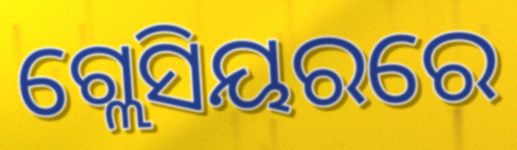
ଗ୍ଲେସିୟରରେ